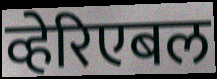
व्हेरिएबल